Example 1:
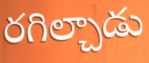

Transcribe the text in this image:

రగిల్చాడు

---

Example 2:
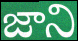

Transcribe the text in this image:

జాని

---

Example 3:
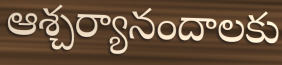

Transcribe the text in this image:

ఆశ్చర్యానందాలకు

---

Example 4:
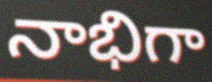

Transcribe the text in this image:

నాభిగా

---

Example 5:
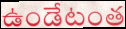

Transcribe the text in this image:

ఉండేటంత